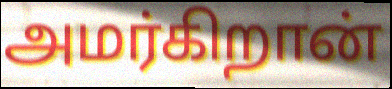
அமர்கிறான்